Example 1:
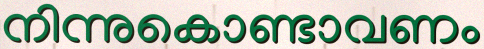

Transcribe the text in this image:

നിന്നുകൊണ്ടാവണം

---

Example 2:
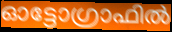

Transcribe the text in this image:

ഓട്ടോഗ്രാഫിൽ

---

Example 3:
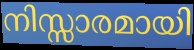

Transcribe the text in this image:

നിസ്സാരമായി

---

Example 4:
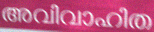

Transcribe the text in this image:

അവിവാഹിത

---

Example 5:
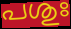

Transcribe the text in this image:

പശുഃ